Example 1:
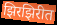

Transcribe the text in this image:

झिरझिरीत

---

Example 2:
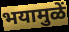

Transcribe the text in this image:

भयामुळें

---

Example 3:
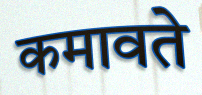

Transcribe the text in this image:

कमावते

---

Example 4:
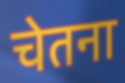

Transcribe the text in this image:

चेतना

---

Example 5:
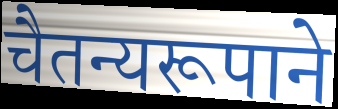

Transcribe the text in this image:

चैतन्यरूपाने